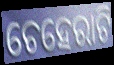
ଚେହେରାଟି